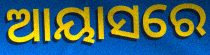
ଆୟାସରେ